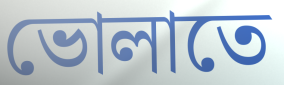
ভোলাতে